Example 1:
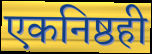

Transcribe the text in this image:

एकनिष्ठही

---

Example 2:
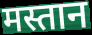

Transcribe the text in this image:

मस्तान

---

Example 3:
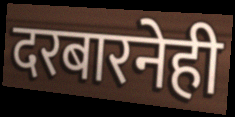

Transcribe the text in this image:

दरबारनेही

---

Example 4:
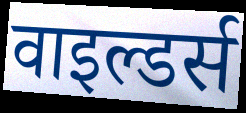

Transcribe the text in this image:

वाइल्डर्स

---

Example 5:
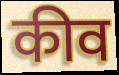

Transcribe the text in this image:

कीव